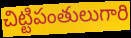
చిట్టిపంతులుగారి